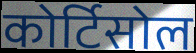
कोर्टिसोल